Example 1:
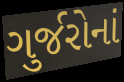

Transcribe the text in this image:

ગુર્જરોનાં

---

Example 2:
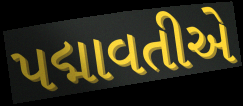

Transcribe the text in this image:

પદ્માવતીએ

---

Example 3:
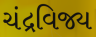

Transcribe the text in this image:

ચંદ્રવિજ્ય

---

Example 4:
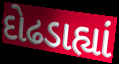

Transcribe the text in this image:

દોઢડાહ્યાં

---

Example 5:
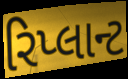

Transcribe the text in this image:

રિપ્લાન્ટ